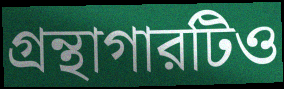
গ্রন্থাগারটিও